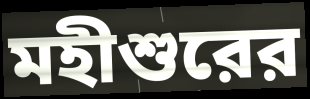
মহীশুরের